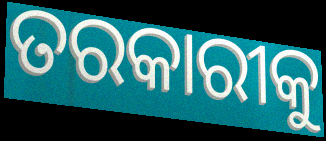
ତରକାରୀକୁ